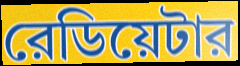
রেডিয়েটার